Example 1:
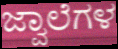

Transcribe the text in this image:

ಜ್ವಾಲೆಗಳ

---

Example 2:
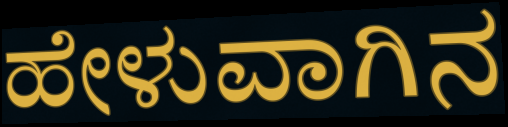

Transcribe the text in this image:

ಹೇಳುವಾಗಿನ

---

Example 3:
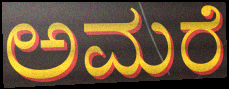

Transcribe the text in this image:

ಅಮರೆ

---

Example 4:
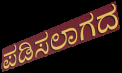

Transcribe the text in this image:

ಪಡಿಸಲಾಗದ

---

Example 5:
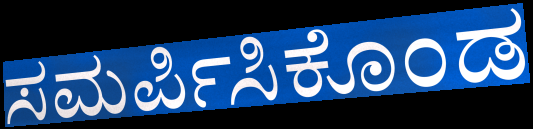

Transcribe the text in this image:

ಸಮರ್ಪಿಸಿಕೊಂಡ